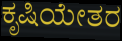
ಕೃಷಿಯೇತರ